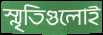
স্মৃতিগুলোই